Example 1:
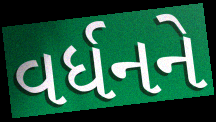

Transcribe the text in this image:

વર્ધનને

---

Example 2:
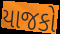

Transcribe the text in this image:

યાજકો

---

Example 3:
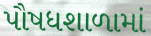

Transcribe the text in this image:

પૌષધશાળામાં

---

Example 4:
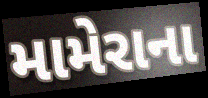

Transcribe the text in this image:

મામેરાના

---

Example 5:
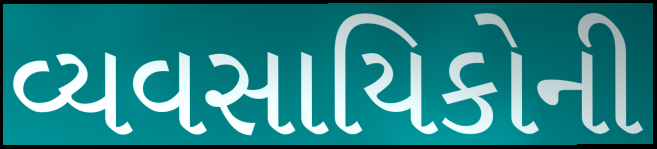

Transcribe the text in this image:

વ્યવસાયિકોની